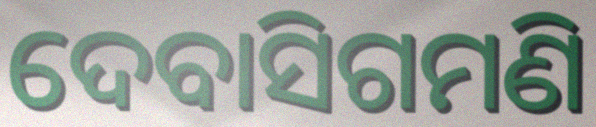
ଦେବାସିଗମଣି